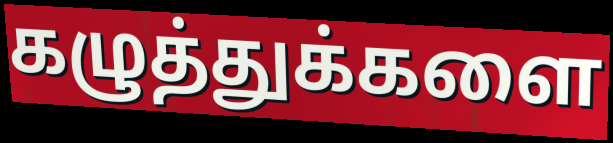
கழுத்துக்களை